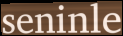
seninle